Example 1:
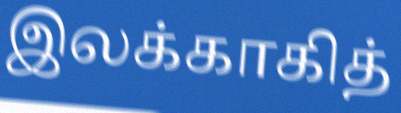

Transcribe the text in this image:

இலக்காகித்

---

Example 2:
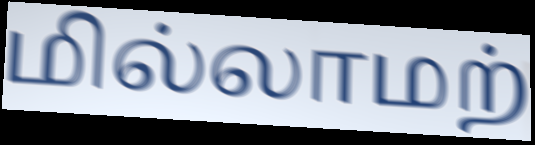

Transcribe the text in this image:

மில்லாமற்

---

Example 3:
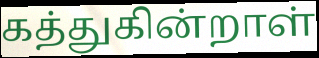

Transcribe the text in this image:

கத்துகின்றாள்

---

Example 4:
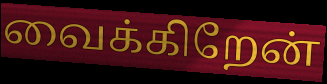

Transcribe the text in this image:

வைக்கிறேன்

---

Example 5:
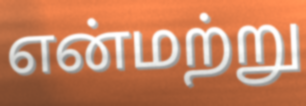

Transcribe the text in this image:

என்மற்று